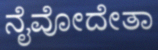
ನೈವೋದೇತಾ